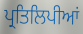
ਪ੍ਰਤਿਲਿਪੀਆਂ